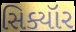
સિક્યૉર